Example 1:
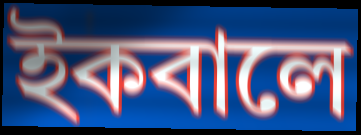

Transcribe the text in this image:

ইকবালে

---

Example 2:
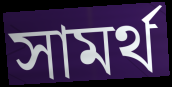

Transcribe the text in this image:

সামৰ্থ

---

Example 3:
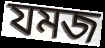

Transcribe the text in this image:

যমজ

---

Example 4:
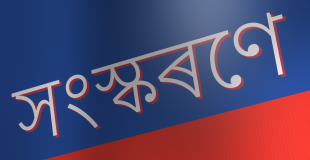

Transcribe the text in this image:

সংস্কৰণে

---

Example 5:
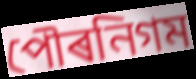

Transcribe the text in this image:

পৌৰনিগম